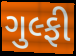
ગુલ્ફી